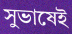
সুভাষেই